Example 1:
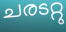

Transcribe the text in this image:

ചരടറ്റു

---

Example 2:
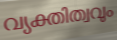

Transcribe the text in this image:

വ്യക്തിത്വവും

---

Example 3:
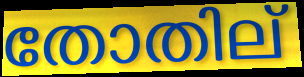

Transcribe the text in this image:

തോതില്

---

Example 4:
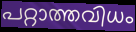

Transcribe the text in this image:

പറ്റാത്തവിധം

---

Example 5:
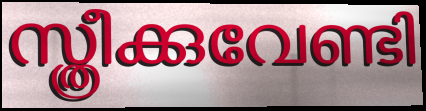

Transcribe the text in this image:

സ്ത്രീക്കുവേണ്ടി